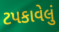
ટપકાવેલું